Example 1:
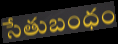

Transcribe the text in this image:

సేతుబంధం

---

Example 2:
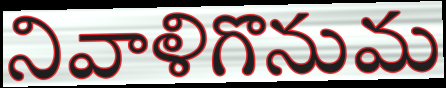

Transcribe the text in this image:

నివాళిగొనుమ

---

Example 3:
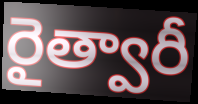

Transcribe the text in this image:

రైత్వారీ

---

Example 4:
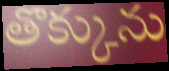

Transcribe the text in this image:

తొక్కును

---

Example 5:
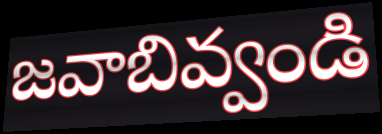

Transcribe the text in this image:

జవాబివ్వండి